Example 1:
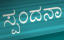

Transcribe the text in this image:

ಸ್ಪಂದನಾ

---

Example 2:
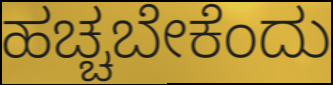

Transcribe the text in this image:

ಹಚ್ಚಬೇಕೆಂದು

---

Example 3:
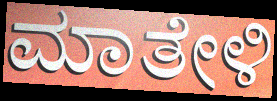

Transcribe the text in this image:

ಮಾತೇಳಿ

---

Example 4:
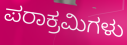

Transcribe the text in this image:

ಪರಾಕ್ರಮಿಗಳು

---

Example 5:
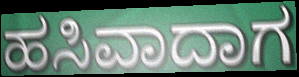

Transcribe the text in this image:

ಹಸಿವಾದಾಗ